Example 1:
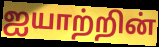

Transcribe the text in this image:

ஐயாற்றின்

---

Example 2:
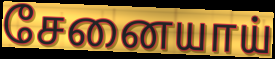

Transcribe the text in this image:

சேனையாய்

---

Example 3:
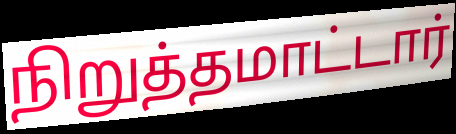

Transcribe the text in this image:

நிறுத்தமாட்டார்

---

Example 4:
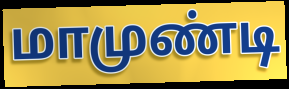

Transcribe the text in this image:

மாமுண்டி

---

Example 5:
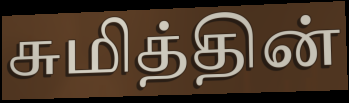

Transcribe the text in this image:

சுமித்தின்